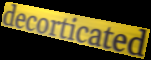
decorticated